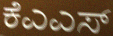
ಕೆಎಎಸ್